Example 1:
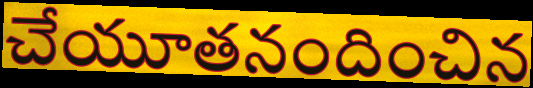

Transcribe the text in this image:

చేయూతనందించిన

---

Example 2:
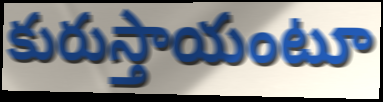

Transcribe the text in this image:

కురుస్తాయంటూ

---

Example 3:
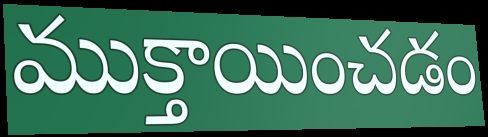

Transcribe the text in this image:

ముక్తాయించడం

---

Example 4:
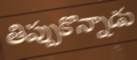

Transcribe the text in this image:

తిప్పుకొన్నాడు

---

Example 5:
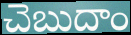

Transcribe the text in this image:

చెబుదాం